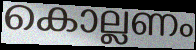
കൊല്ലണം